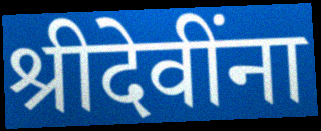
श्रीदेवींना